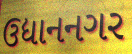
ઉદ્યાનનગર